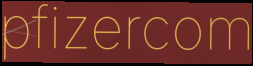
pfizercom